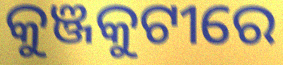
କୁଞ୍ଜକୁଟୀରେ